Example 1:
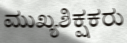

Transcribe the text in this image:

ಮುಖ್ಯಶಿಕ್ಷಕರು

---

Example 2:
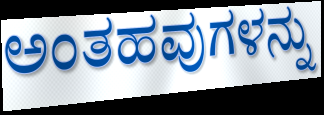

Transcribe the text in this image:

ಅಂತಹವುಗಳನ್ನು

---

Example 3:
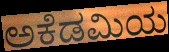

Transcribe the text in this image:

ಅಕೆಡಮಿಯ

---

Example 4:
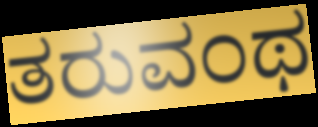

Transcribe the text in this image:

ತರುವಂಥ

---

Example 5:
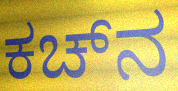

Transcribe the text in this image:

ಕಚ್‌ನ